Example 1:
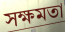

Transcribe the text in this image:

সক্ষমতা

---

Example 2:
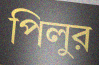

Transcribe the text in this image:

পিলুর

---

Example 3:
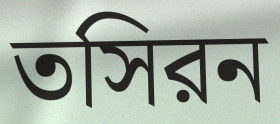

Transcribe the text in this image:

তসিরন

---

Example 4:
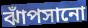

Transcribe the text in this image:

ঝাঁপসানো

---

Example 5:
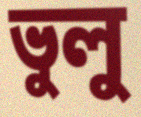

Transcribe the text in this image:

ভুলু